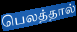
பெலத்தால்